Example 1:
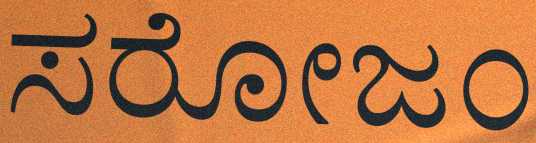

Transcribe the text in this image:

ಸರೋಜಂ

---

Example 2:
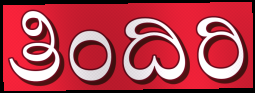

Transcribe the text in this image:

ತಿಂದಿರಿ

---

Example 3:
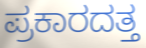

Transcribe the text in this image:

ಪ್ರಕಾರದತ್ತ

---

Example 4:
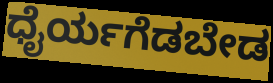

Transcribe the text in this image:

ಧೈರ್ಯಗೆಡಬೇಡ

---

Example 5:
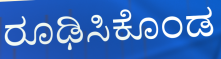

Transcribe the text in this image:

ರೂಢಿಸಿಕೊಂಡ